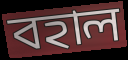
বহাল